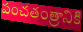
పంచతంత్రానికి